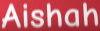
Aishah